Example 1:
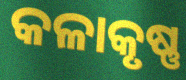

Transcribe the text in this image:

କଳାକୃଷ୍ଣ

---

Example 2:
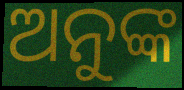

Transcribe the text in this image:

ଅନୁଙ୍କ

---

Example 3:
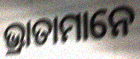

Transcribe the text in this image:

ଭ୍ରାତାମାନେ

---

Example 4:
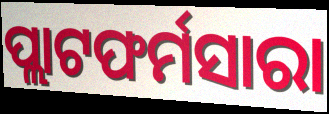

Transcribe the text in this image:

ପ୍ଲାଟଫର୍ମସାରା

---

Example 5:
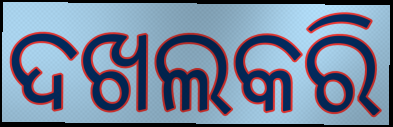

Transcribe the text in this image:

ଦଖଲକରି